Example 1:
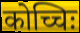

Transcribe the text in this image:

कोच्चिः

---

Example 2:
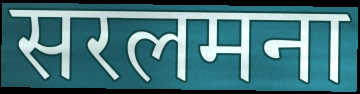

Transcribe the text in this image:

सरलमना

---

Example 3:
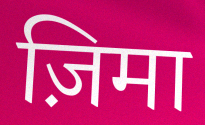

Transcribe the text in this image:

ज़िमा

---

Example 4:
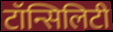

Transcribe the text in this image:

टॉन्सिलिटी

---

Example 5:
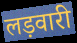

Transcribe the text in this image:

लड़वारी